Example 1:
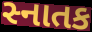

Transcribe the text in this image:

સ્નાતક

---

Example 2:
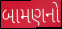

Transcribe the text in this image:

બામણનો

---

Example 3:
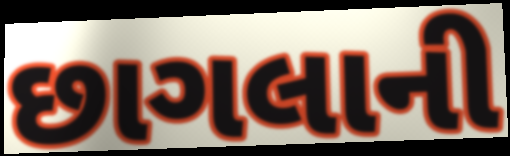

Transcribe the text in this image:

છાગલાની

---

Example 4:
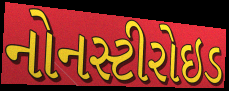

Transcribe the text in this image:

નોનસ્ટીરોઇડ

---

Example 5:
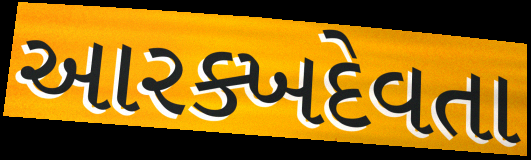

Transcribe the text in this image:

આરક્ખદેવતા